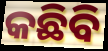
କଛିବି